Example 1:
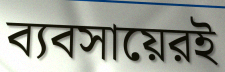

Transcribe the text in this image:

ব্যবসায়েরই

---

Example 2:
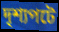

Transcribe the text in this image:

দৃশ্যপটে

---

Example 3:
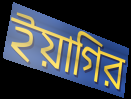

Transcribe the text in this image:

ইয়াগির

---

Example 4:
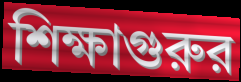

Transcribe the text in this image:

শিক্ষাগুরুর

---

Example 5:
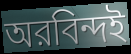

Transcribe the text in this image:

অরবিন্দই